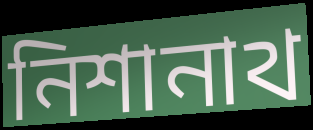
নিশানাথ